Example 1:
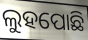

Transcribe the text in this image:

ଲୁହପୋଛି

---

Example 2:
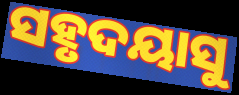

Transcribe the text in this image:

ସହୃଦୟାସୁ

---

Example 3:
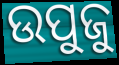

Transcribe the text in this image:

ଉପୁଜୁ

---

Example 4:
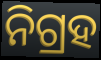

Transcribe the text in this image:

ନିଗ୍ରହ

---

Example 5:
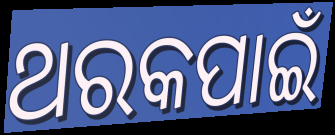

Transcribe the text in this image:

ଥରକପାଇଁ